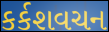
કર્કશવચન